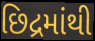
છિદ્રમાંથી